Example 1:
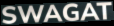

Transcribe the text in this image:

SWAGAT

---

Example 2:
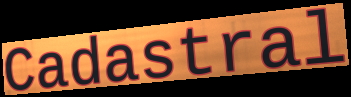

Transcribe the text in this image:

Cadastral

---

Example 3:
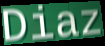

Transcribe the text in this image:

Diaz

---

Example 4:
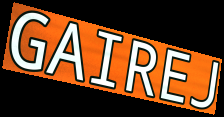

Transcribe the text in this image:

GAIREJ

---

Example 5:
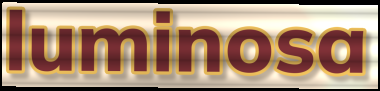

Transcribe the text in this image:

luminosa